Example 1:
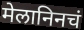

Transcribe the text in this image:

मेलानिनचं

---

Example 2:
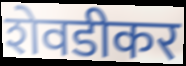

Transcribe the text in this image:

शेवडीकर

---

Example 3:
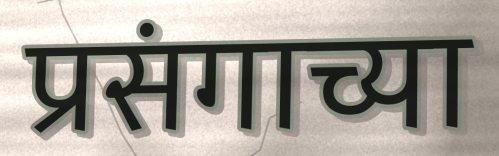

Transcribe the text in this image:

प्रसंगाच्या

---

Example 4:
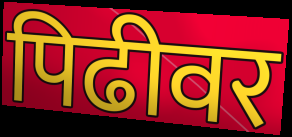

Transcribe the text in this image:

पिढीवर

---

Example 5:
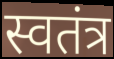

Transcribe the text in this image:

स्वतंत्र